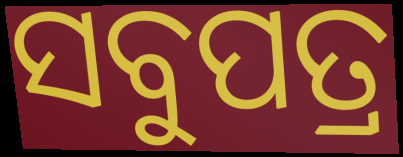
ସବୁପତ୍ର